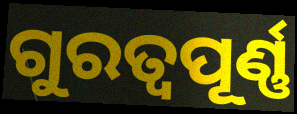
ଗୁରତ୍ୱପୂର୍ଣ୍ଣ